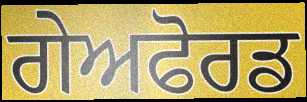
ਗੇਅਫੋਰਡ